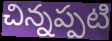
చిన్నప్పటి